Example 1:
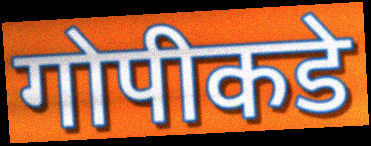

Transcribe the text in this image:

गोपीकडे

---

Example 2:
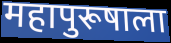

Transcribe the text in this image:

महापुरूषाला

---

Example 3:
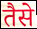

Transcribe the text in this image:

तैसे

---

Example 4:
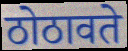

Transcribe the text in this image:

ठोठावते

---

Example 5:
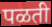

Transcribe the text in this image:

पळती